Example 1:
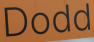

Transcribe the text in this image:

Dodd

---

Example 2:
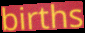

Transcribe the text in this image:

births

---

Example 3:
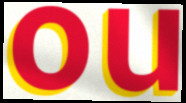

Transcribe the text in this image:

ou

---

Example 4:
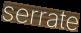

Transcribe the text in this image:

serrate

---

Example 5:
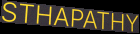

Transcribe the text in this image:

STHAPATHY